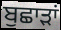
ਬੁਛਾੜਾਂ